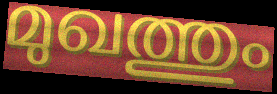
മുഖത്തും